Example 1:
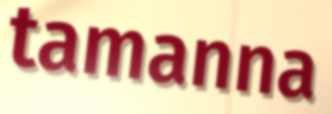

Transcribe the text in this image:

tamanna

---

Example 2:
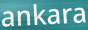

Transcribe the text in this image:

ankara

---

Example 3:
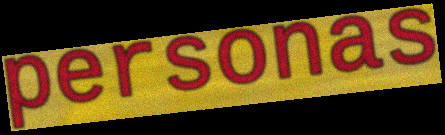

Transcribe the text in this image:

personas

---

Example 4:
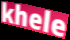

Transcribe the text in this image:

khele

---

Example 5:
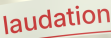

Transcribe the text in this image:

laudation